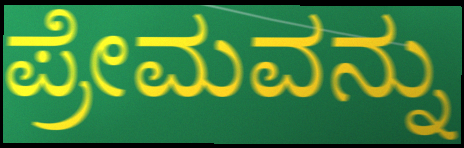
ಪ್ರೇಮವನ್ನು